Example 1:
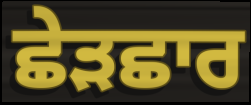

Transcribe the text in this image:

ਛੇੜਛਾਰ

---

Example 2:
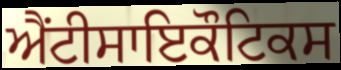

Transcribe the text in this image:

ਐਂਟੀਸਾਇਕੌਟਿਕਸ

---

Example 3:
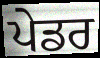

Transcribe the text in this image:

ਪੇਡਰ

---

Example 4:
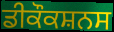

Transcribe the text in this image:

ਡੀਕੌਕਸ਼ਨਸ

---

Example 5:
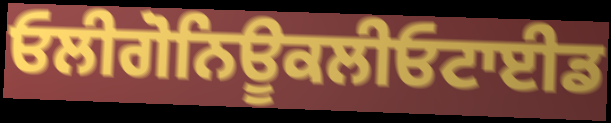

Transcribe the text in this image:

ਓਲੀਗੋਨਿਊਕਲੀਓਟਾਈਡ